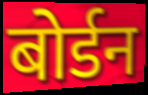
बोर्डन